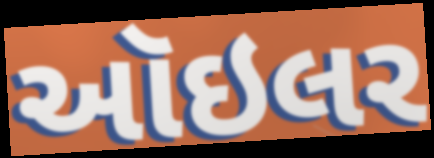
ઑઇલર